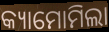
କ୍ୟାମୋମିଲା